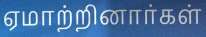
ஏமாற்றினார்கள்